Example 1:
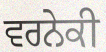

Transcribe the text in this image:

ਵਰਨੇਕੀ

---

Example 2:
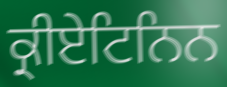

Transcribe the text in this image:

ਕ੍ਰੀਏਟਿਨਿਨ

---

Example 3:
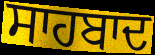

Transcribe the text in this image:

ਸਾਹਬਾਦ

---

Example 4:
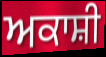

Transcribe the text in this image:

ਅਕਾਸ਼ੀ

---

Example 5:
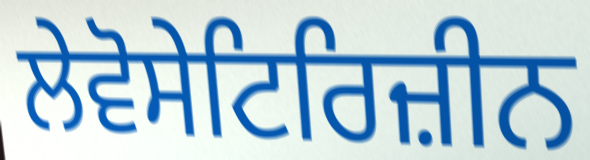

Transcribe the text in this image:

ਲੇਵੋਸੇਟਿਰਿਜ਼ੀਨ